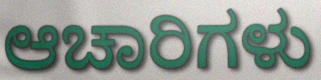
ಆಚಾರಿಗಳು